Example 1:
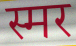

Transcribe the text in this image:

स्मर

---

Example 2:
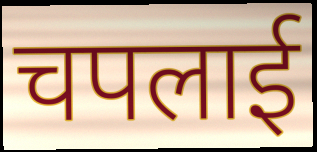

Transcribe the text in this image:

चपलाई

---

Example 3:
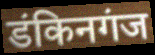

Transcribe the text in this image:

डंकिनगंज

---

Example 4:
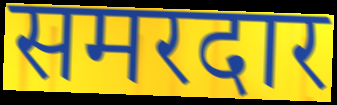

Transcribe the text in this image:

समरदार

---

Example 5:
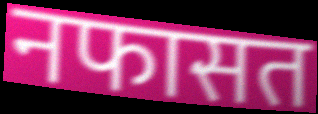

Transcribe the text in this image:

नफासत